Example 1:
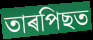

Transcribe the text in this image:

তাৰপিছত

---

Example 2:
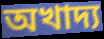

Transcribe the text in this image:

অখাদ্য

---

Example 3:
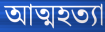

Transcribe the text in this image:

আত্মহত্যা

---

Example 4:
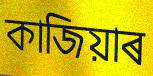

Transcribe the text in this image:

কাজিয়াৰ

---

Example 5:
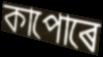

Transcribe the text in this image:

কাপোৰে